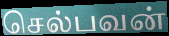
செல்பவன்